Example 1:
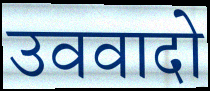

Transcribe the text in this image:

उववादो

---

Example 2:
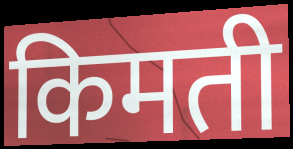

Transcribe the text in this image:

किमती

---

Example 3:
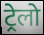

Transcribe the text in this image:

ट्रेलो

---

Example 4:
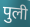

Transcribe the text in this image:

पुली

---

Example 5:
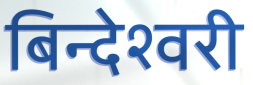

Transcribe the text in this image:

बिन्देश्वरी